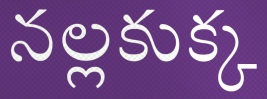
నల్లకుక్క